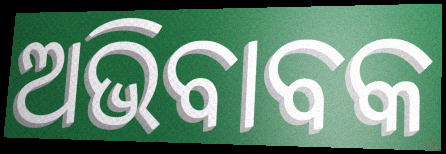
ଅଭିବାବକ